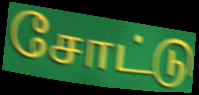
சோட்டு